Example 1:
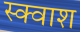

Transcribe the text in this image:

स्क्वाश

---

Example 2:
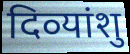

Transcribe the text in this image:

दिव्‍यांशु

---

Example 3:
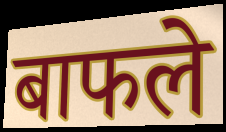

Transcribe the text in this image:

बाफले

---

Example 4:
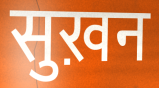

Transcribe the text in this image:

सुख़न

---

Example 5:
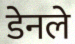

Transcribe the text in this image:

डेनले